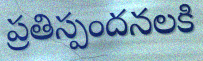
ప్రతిస్పందనలకి